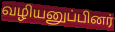
வழியனுப்பினர்